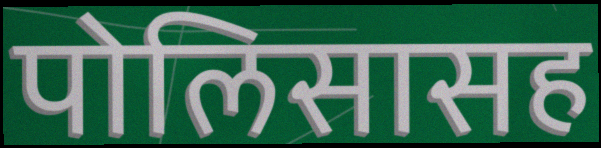
पोलिसासह